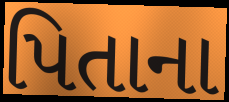
પિતાના